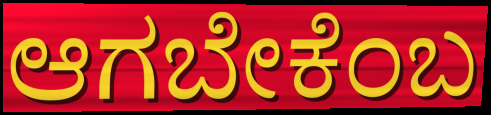
ಆಗಬೇಕೆಂಬ